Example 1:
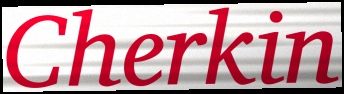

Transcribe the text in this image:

Cherkin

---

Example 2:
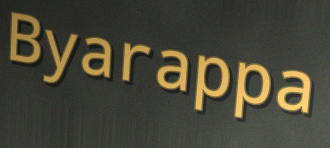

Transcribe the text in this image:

Byarappa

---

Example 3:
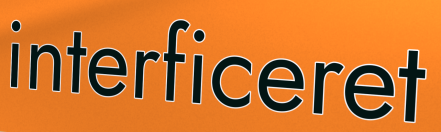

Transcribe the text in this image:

interficeret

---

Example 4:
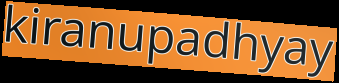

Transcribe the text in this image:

kiranupadhyay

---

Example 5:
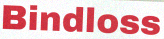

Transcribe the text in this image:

Bindloss